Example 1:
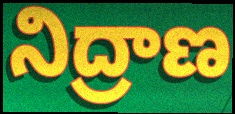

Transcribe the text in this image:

నిద్రాణ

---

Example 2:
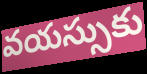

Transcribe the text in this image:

వయస్సుకు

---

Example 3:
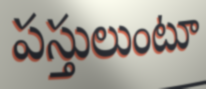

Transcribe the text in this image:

పస్తులుంటూ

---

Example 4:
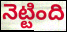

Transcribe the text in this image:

నెట్టింది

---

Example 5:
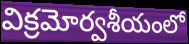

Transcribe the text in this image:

విక్రమోర్వశీయంలో